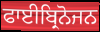
ਫਾਈਬ੍ਰਿਨੋਜਨ